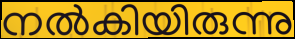
നൽകിയിരുന്നു